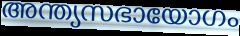
അന്ത്യസഭായോഗം